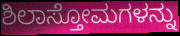
ಶಿಲಾಸ್ತೋಮಗಳನ್ನು